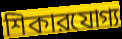
শিকারযোগ্য